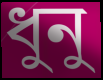
ধুনু